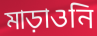
মাড়াওনি